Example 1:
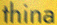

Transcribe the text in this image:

thina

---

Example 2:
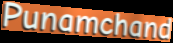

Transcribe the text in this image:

Punamchand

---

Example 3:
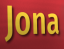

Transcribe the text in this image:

Jona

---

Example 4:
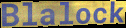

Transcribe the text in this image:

Blalock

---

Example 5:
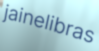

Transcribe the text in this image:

jainelibras